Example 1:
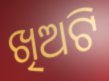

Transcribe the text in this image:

ଖିଅଟି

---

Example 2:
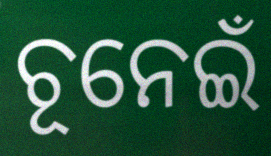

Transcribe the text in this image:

ଚୂନେଇଁ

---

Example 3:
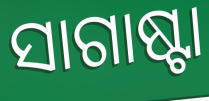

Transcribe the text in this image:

ସାଗାଷ୍ଟା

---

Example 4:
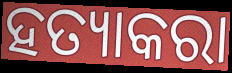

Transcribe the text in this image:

ହତ୍ୟାକରା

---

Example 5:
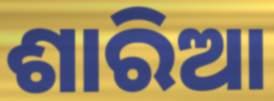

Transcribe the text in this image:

ଶାରିଆ